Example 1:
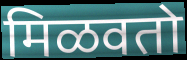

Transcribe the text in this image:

मिळवतो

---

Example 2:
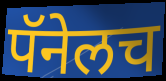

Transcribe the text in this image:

पॅनेलच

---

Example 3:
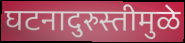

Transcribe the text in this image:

घटनादुरुस्तीमुळे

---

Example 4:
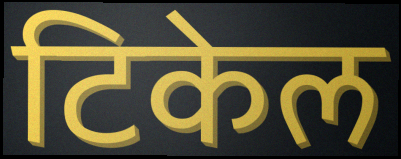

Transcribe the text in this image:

टिकेल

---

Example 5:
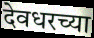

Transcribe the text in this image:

देवधरच्या